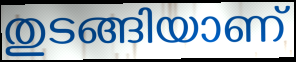
തുടങ്ങിയാണ്